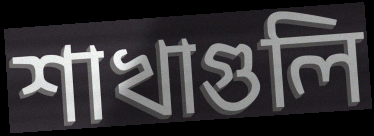
শাখাগুলি